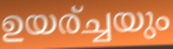
ഉയര്ച്ചയും